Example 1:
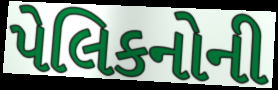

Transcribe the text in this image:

પેલિકનોની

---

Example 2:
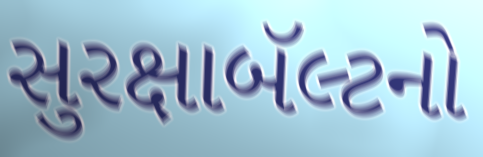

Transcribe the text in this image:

સુરક્ષાબૅલ્ટનો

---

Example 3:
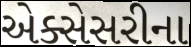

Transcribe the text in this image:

એક્સેસરીના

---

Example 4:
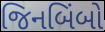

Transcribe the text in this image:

જિનબિંબો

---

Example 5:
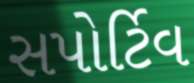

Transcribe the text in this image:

સપોર્ટિવ